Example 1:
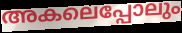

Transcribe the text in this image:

അകലെപ്പോലും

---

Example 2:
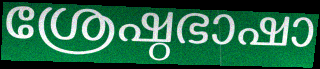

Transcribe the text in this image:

ശ്രേഷ്ഠഭാഷാ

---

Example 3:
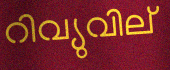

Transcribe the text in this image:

റിവ്യുവില്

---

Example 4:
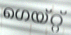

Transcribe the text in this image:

ഗെയ്റ്റ്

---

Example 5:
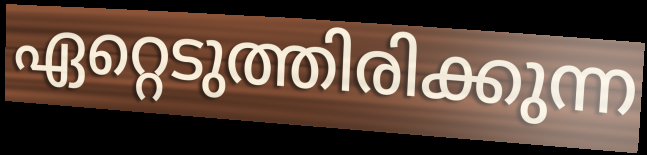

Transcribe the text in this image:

ഏറ്റെടുത്തിരിക്കുന്ന